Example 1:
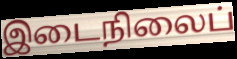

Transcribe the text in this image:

இடைநிலைப்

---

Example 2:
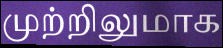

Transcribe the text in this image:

முற்றிலுமாக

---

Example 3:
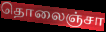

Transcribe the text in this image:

தொலைஞ்சா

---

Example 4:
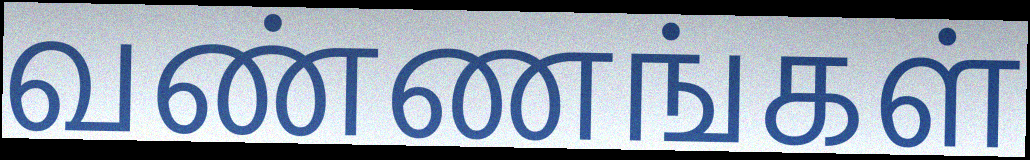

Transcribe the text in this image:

வண்ணங்கள்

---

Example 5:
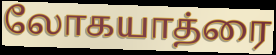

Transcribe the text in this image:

லோகயாத்ரை